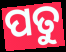
ପତୁ